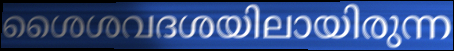
ശൈശവദശയിലായിരുന്ന